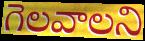
గెలవాలని